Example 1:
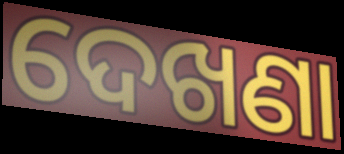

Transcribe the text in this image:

ଦେଖଣା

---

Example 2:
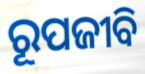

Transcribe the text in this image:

ରୂପଜୀବି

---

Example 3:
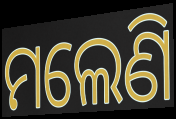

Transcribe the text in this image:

ମଲେଣି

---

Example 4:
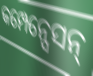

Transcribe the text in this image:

କମ୍ପେନ୍ସେସନ୍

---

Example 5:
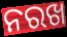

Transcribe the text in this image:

ନରଖ